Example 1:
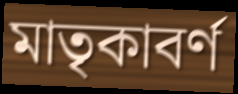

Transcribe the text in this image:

মাতৃকাবর্ণ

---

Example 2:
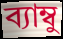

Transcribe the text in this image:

ব্যাম্বু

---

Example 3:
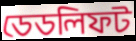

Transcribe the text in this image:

ডেডলিফট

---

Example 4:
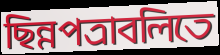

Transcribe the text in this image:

ছিন্নপত্রাবলিতে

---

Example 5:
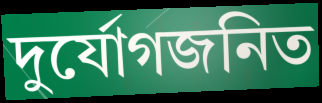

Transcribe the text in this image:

দুর্যোগজনিত